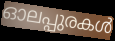
ഓലപ്പുരകൾ